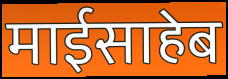
माईसाहेब